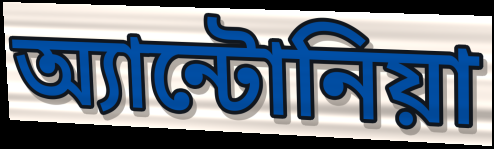
অ্যান্টোনিয়া